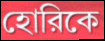
হোরিকে